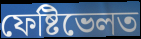
ফেষ্টিভেলত